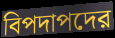
বিপদাপদের